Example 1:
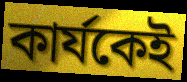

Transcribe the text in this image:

কার্যকেই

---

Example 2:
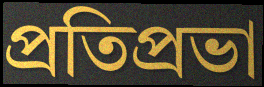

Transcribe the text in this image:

প্রতিপ্রভা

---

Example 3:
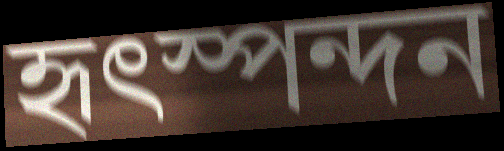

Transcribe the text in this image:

হৃৎস্পন্দন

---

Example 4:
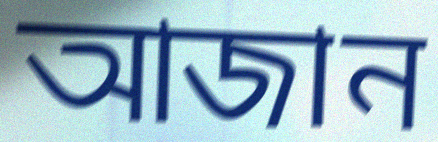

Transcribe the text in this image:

আজান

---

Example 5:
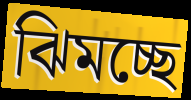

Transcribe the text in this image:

ঝিমচ্ছে